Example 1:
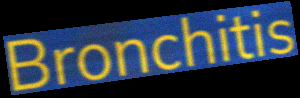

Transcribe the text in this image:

Bronchitis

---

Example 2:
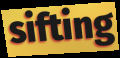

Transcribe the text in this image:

sifting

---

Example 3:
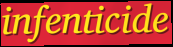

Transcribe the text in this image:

infenticide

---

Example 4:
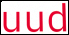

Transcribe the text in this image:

uud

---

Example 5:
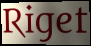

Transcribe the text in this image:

Riget